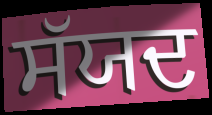
ਸੱਯਦ